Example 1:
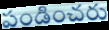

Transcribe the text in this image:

పండించరు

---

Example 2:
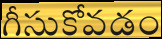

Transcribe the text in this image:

గీసుకోవడం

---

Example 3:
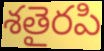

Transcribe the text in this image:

శతైరపి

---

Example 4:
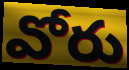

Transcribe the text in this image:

వోరు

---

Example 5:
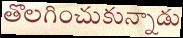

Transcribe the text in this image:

తొలగించుకున్నాడు